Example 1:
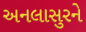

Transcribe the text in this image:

અનલાસુરને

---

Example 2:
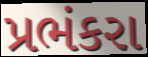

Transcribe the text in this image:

પ્રભંકરા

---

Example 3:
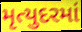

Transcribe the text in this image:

મૃત્યુદરમાં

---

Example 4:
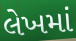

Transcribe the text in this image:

લેખમાં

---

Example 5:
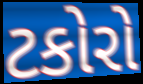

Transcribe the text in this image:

ટકોરો